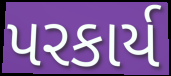
પરકાર્ય